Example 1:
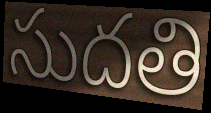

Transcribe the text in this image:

సుదతి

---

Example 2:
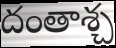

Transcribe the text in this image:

దంతాశ్చ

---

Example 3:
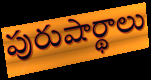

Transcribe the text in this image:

పురుషార్థాలు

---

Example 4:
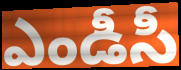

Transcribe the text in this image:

ఎండీసీ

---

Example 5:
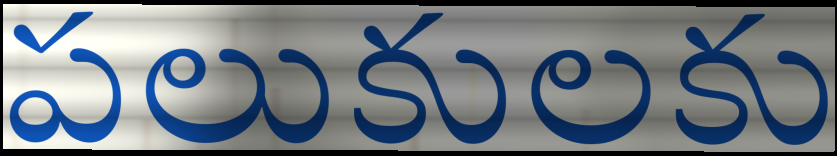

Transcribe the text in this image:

పలుకులకు